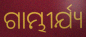
ଗାମ୍ଭୀର୍ଯ୍ୟ